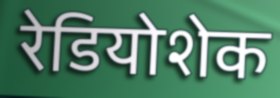
रेडियोशेक